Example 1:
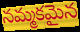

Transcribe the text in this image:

నమ్మకమైన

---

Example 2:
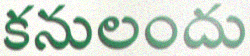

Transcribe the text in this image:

కనులందు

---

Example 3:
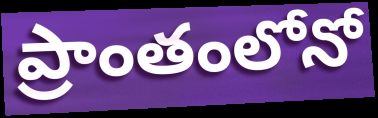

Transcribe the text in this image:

ప్రాంతంలోనో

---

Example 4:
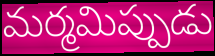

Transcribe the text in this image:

మర్మమిప్పుడు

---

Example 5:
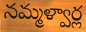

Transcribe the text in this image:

నమ్మళ్వార్ల